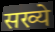
सख्ये